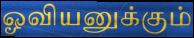
ஓவியனுக்கும்